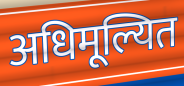
अधिमूल्यित